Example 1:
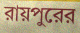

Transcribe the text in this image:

রায়পুরের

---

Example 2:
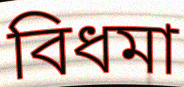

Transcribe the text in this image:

বিধমা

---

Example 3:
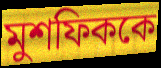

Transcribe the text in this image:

মুশফিককে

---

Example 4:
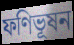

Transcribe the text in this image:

ফণিভূষন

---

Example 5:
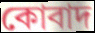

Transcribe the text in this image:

কোবাদ